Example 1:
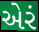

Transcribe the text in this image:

એરં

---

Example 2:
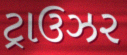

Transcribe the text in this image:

ટ્રાઉઝર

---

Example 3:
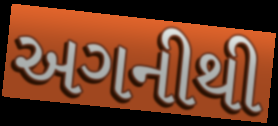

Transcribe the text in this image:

અગનીથી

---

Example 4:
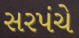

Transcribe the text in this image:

સરપંચે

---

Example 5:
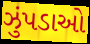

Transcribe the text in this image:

ઝુંપડાઓ